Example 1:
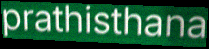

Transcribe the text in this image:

prathisthana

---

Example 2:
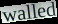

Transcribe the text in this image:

walled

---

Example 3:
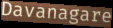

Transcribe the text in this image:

Davanagare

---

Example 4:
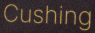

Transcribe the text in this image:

Cushing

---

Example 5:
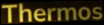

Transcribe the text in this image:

Thermos